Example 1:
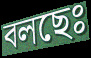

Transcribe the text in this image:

বলছেঃ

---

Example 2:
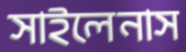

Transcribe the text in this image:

সাইলেনাস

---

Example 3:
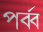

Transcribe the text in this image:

পর্ব্ব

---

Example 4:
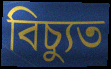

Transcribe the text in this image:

বিচ্যুত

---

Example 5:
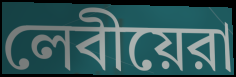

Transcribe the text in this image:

লেবীয়েরা